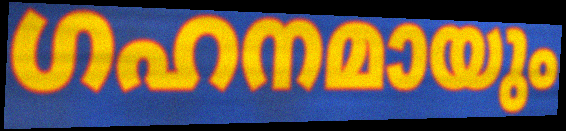
ഗഹനമായും